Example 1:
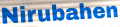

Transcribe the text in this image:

Nirubahen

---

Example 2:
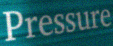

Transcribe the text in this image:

Pressure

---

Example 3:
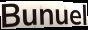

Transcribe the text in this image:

Bunuel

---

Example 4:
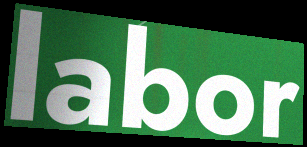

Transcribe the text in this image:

labor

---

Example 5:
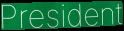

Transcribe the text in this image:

President